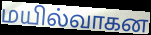
மயில்வாகன